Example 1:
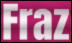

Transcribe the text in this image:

Fraz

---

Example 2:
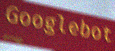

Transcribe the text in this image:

Googlebot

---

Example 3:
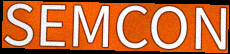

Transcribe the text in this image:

SEMCON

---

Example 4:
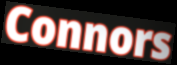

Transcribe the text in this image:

Connors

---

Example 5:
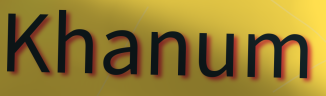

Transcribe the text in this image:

Khanum